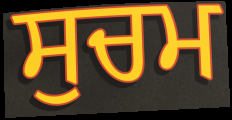
ਸੁਚਮ